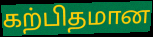
கற்பிதமான